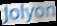
Jolyon